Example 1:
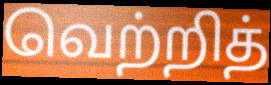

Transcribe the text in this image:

வெற்றித்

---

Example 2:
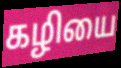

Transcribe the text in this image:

கழியை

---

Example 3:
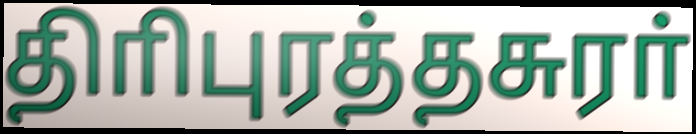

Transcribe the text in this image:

திரிபுரத்தசுரர்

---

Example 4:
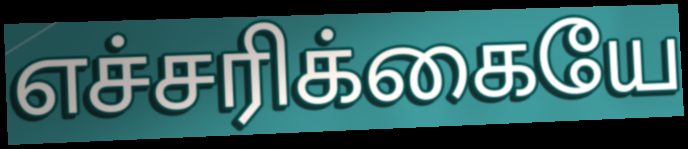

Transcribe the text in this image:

எச்சரிக்கையே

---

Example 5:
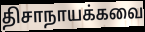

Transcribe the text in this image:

திசாநாயக்கவை